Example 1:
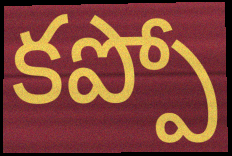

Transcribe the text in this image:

కప్పో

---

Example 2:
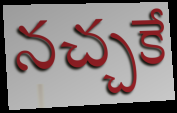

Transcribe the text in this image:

నచ్చకే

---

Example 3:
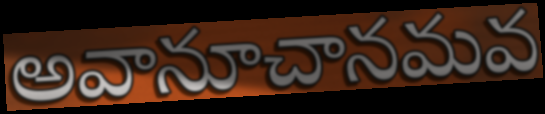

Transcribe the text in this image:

అవానూచానమవ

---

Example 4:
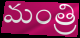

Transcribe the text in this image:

మంత్రి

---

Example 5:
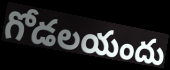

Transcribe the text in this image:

గోడలయందు